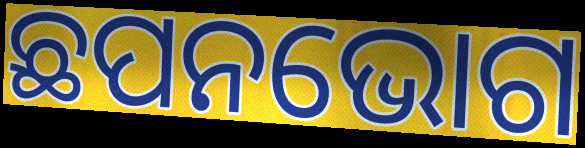
ଛପନଭୋଗ